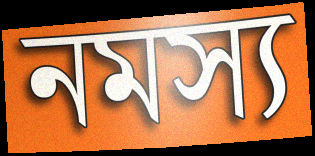
নমস্য